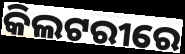
କିଲଟରୀରେ